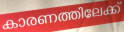
കാരണത്തിലേക്ക്